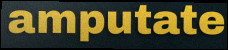
amputate